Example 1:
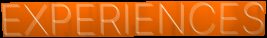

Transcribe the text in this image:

EXPERIENCES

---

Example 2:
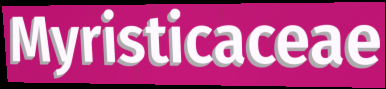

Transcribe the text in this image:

Myristicaceae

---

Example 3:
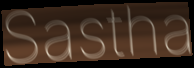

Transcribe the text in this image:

Sastha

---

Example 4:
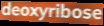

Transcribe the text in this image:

deoxyribose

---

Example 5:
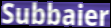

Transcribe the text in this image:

Subbaier